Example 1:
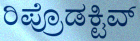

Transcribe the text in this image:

ರಿಪ್ರೊಡಕ್ಟಿವ್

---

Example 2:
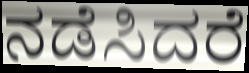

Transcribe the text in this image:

ನಡೆಸಿದರೆ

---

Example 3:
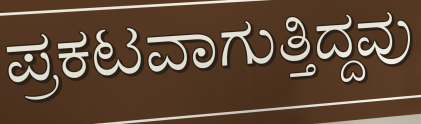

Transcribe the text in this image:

ಪ್ರಕಟವಾಗುತ್ತಿದ್ದವು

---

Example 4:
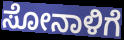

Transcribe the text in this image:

ಸೋನಾಳಿಗೆ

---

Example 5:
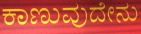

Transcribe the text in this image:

ಕಾಣುವುದೇನು